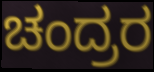
ಚಂದ್ರರ